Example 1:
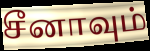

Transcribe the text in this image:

சீனாவும்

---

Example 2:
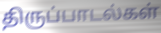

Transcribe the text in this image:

திருப்பாடல்கள்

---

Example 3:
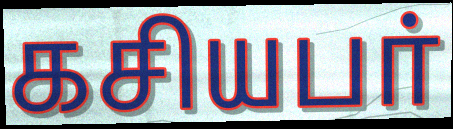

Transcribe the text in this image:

கசியபர்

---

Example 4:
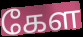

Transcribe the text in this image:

கேள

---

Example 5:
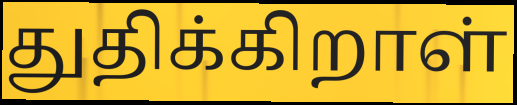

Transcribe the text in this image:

துதிக்கிறாள்